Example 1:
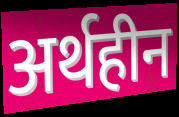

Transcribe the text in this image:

अर्थहीन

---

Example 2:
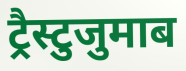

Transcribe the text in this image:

ट्रैस्टुजुमाब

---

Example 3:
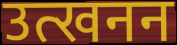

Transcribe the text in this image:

उत्खनन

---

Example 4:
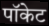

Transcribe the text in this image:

पॉकेट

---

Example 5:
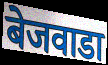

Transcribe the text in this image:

बेजवाडा